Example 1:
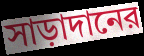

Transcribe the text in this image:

সাড়াদানের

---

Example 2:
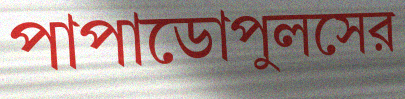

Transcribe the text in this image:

পাপাডোপুলসের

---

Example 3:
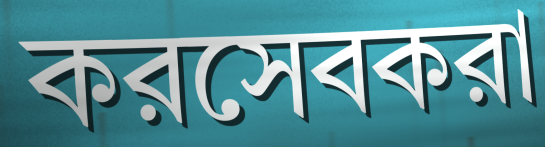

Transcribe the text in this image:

করসেবকরা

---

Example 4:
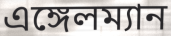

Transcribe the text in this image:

এঙ্গেলম্যান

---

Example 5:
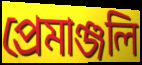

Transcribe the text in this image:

প্রেমাঞ্জলি